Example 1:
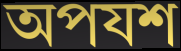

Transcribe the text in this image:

অপযশ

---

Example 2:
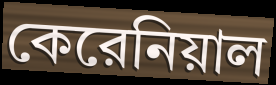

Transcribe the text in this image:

কেরেনিয়াল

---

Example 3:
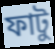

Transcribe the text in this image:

ফাটু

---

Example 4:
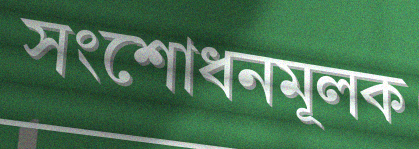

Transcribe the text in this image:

সংশোধনমূলক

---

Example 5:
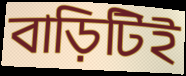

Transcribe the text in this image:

বাড়িটিই